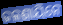
ଜଳଶାୟିନେ